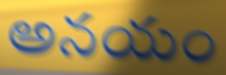
అనయం